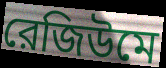
রেজিউমে